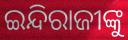
ଇନ୍ଦିରାଜୀଙ୍କୁ